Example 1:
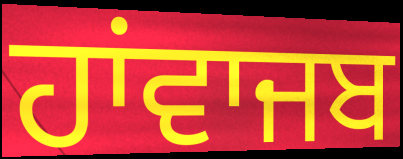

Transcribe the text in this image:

ਹਾਂਵਾਜਬ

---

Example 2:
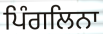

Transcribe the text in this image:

ਪਿੰਗਲਿਨਾ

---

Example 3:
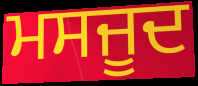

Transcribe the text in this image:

ਮਸਜੂਦ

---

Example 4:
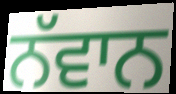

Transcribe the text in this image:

ਨੱਵਾਨ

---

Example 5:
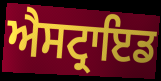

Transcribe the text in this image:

ਐਸਟ੍ਰਾਇਡ